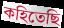
কহিতেছি